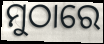
ମୁଠାରେ